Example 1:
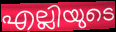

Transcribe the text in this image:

എല്ലിയുടെ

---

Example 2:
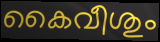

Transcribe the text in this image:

കൈവീശും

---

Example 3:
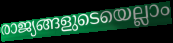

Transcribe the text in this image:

രാജ്യങ്ങളുടെയെല്ലാം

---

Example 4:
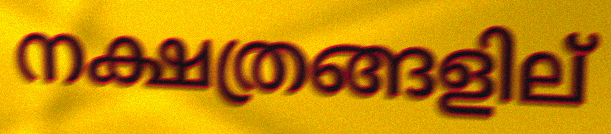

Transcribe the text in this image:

നക്ഷത്രങ്ങളില്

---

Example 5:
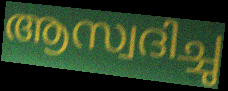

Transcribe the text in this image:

ആസ്വദിച്ചു